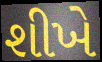
શીખે